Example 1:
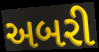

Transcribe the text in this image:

અબરી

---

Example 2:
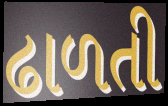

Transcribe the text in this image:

ઢાળતી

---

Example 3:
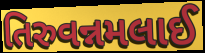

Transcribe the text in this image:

તિરુવન્નમલાઈ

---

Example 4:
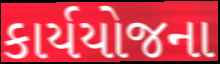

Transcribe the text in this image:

કાર્યયોજના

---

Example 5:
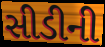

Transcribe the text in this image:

સીડીની